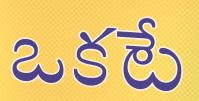
ఒకటే